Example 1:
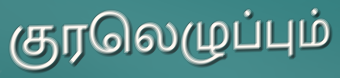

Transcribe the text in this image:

குரலெழுப்பும்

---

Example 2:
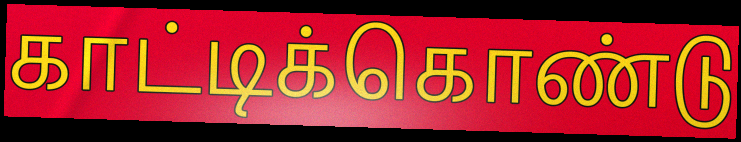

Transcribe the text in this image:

காட்டிக்கொண்டு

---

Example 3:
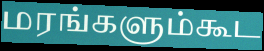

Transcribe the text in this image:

மரங்களும்கூட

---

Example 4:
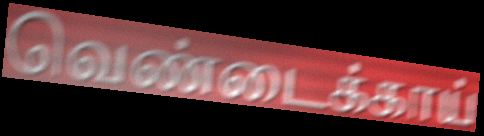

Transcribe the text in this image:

வெண்டைக்காய்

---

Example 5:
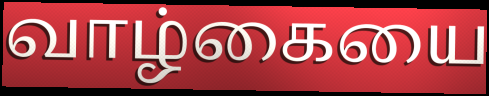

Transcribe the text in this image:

வாழ்கையை